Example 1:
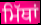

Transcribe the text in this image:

ਮਿੱਥਾਂ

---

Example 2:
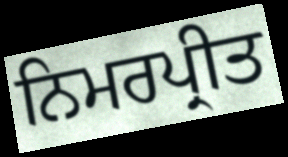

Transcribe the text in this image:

ਨਿਮਰਪ੍ਰੀਤ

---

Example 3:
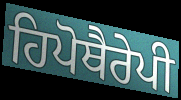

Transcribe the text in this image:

ਹਿਪੋਥੈਰੇਪੀ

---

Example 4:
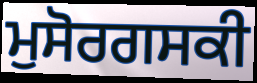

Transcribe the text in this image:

ਮੁਸੋਰਗਸਕੀ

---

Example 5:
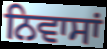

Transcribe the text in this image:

ਨਿਵਾਸਾਂ